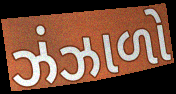
ઝંઝાળો